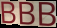
BBB